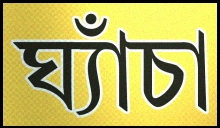
ঘ্যাঁচা